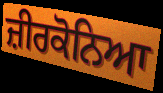
ਜ਼ੀਰਕੋਨਿਆ